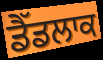
ਡੈੱਡਲਾਕ